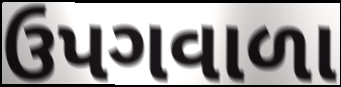
ઉપગવાળા